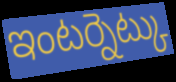
ఇంటర్నెట్కు